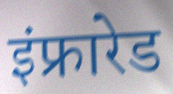
इंफ्रारेड